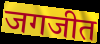
जगजीत